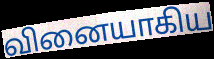
வினையாகிய